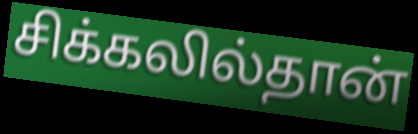
சிக்கலில்தான்